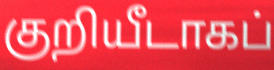
குறியீடாகப்